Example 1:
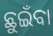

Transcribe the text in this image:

ଛୁଇଁବା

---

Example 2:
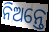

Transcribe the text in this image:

ନିଅନ୍ତେ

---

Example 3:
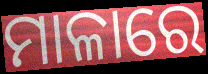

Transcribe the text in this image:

ମାଳାରେ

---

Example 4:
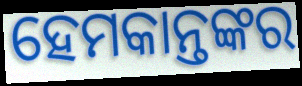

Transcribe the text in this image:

ହେମକାନ୍ତଙ୍କର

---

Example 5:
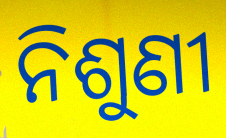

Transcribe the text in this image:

ନିଶୁଣୀ